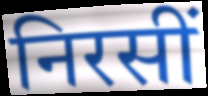
निरसीं